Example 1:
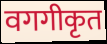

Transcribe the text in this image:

वगगीकृत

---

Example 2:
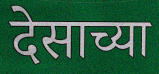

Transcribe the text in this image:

देसाच्या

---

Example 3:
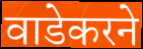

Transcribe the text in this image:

वाडेकरने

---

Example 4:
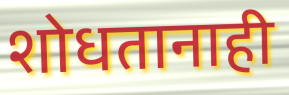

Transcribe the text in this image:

शोधतानाही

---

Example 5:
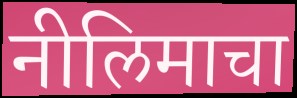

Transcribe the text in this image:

नीलिमाचा